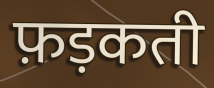
फ़ड़कती